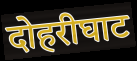
दोहरीघाट